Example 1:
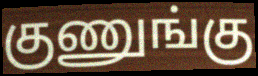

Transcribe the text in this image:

குணுங்கு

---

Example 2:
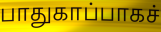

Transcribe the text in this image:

பாதுகாப்பாகச்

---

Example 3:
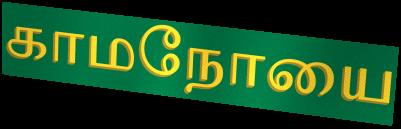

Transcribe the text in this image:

காமநோயை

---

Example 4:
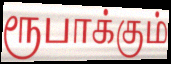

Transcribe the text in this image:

ரூபாக்கும்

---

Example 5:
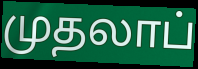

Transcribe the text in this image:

முதலாப்